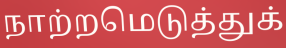
நாற்றமெடுத்துக்